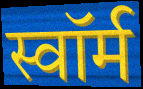
स्वॉर्म